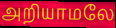
அறியாமலே